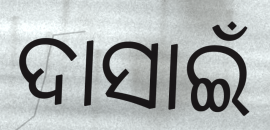
ଦାସାଇଁ